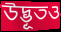
উদ্ভূতও